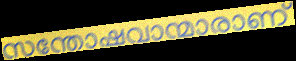
സന്തോഷവാന്മാരാണ്